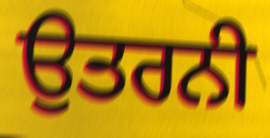
ਉਤਰਨੀ